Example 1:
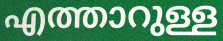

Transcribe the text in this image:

എത്താറുള്ള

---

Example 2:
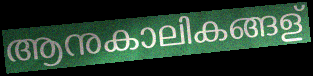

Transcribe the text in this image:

ആനുകാലികങ്ങള്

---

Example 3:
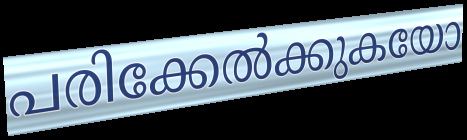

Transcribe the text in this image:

പരിക്കേൽക്കുകയോ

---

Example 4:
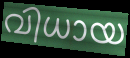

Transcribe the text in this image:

വിധായ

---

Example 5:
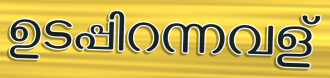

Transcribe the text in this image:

ഉടപ്പിറന്നവള്